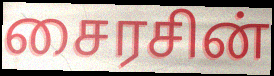
சைரசின்